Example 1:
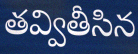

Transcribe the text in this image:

తవ్వితీసిన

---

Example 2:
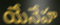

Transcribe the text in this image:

యేనేహ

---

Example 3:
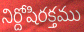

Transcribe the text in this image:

నిర్దోషిరక్తము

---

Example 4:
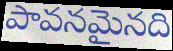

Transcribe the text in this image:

పావనమైనది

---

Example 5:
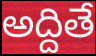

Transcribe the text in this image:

అద్దితే